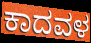
ಕಾದವಳ